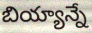
బియ్యాన్నే